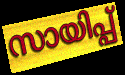
സായിപ്പ്